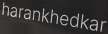
harankhedkar